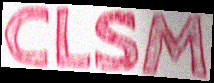
CLSM